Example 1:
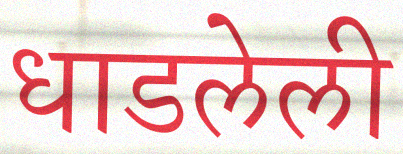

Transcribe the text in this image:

धाडलेली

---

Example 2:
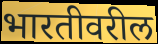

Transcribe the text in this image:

भारतीवरील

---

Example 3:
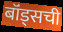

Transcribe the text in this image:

बॉंड्सची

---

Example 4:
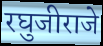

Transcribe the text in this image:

रघुजीराजे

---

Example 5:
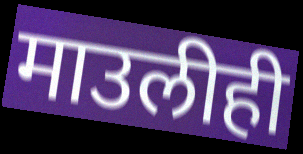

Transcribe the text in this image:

माउलीही